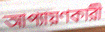
আপ্যায়ণকারী